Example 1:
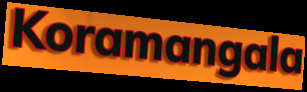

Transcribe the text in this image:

Koramangala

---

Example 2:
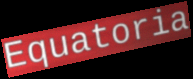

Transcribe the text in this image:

Equatoria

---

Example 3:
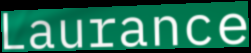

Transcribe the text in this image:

Laurance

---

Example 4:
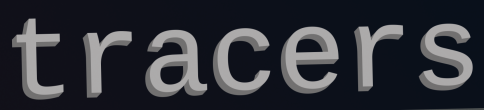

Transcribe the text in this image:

tracers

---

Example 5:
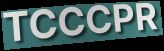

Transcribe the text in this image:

TCCCPR